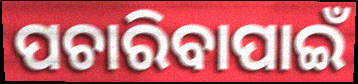
ପଚାରିବାପାଇଁ